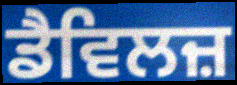
ਡੈਵਿਲਜ਼